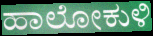
ಹಾಲೋಕುಳಿ